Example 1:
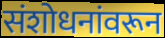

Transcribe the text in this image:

संशोधनांवरून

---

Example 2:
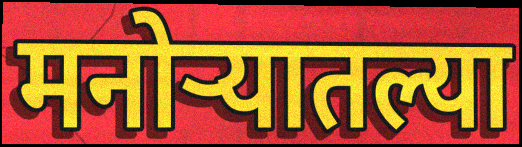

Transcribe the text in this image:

मनोर्‍यातल्या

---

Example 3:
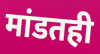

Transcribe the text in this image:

मांडतही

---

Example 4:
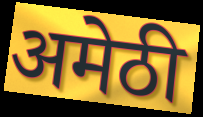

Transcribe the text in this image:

अमेठी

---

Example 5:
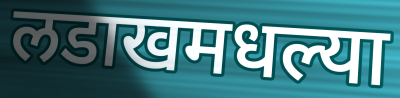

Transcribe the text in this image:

लडाखमधल्या